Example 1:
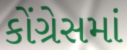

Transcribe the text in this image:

કોંગ્રેસમાં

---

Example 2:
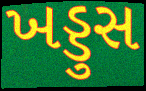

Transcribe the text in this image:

ખડ્ડુસ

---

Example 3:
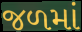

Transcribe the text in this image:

જળમાં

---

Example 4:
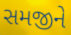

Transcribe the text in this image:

સમજીને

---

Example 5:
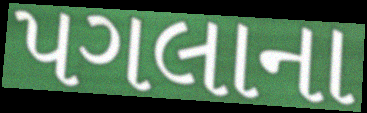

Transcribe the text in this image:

પગલાના